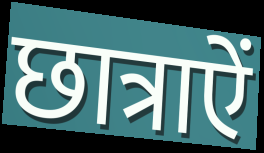
छात्राऐं